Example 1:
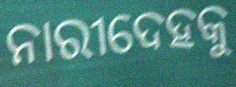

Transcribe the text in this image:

ନାରୀଦେହକୁ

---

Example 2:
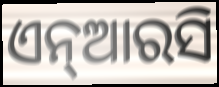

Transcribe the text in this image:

ଏନ୍ଆରସି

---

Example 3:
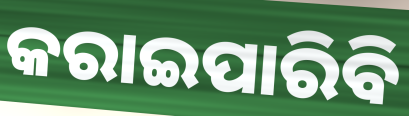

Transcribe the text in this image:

କରାଇପାରିବି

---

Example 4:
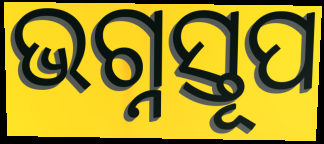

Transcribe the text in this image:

ଭଗ୍ନସ୍ତୂପ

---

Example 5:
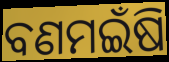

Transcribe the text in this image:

ବଣମଇଁଷି